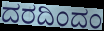
ದರದಿಂದಂ